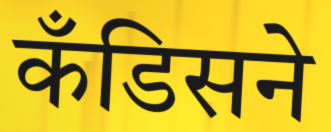
कँडिसने